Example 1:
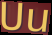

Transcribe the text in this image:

Uu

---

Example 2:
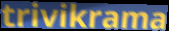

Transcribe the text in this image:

trivikrama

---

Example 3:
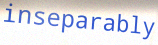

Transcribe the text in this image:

inseparably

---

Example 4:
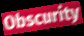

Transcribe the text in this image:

Obscurity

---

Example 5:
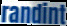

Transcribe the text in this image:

randint